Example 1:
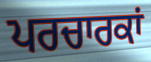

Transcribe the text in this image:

ਪਰਚਾਰਕਾਂ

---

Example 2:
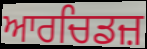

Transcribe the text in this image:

ਆਰਚਿਡਜ਼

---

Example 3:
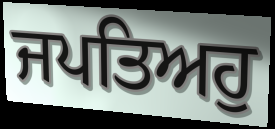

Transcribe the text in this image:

ਜਪਤਿਅਹੁ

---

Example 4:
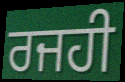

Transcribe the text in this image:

ਰਜਹੀ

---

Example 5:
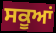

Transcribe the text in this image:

ਸਕੂਆਂ